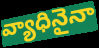
వ్యాధినైనా